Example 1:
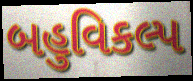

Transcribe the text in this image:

બહુવિકલ્પ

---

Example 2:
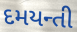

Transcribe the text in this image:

દમયન્તી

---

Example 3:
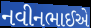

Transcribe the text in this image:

નવીનભાઈએ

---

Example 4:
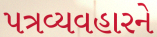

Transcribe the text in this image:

પત્રવ્યવહારને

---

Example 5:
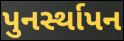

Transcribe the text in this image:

પુનર્સ્થાપન